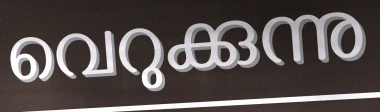
വെറുക്കുന്നു